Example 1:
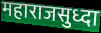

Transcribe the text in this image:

महाराजसुध्दा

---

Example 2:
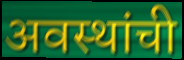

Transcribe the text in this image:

अवस्थांची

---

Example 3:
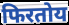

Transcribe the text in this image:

फिरतोय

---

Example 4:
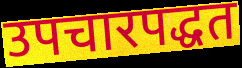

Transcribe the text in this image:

उपचारपद्धत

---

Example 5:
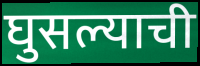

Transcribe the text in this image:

घुसल्याची